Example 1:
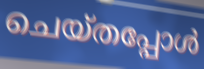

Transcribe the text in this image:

ചെയ്തപ്പോൾ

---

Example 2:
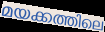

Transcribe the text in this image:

മയക്കത്തിലെ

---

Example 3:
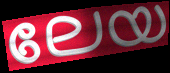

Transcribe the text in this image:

ലേയ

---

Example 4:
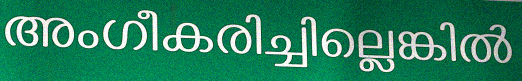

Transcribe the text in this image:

അംഗീകരിച്ചില്ലെങ്കിൽ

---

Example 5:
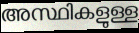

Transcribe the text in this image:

അസ്ഥികളുള്ള